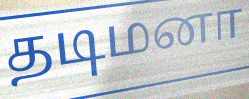
தடிமனா